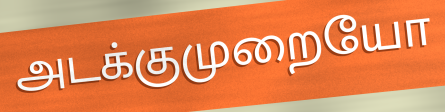
அடக்குமுறையோ